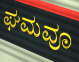
ಘಮವೂ